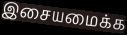
இசையமைக்க